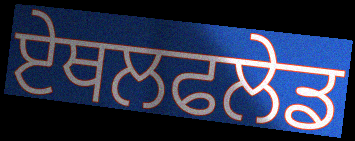
ਏਥਲਫਲੇਡ